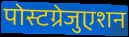
पोस्टग्रेजुएशन